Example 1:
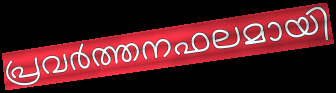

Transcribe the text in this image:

പ്രവർത്തനഫലമായി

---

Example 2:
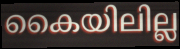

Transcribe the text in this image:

കൈയിലില്ല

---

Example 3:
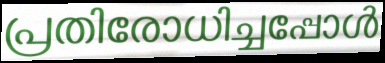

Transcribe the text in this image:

പ്രതിരോധിച്ചപ്പോൾ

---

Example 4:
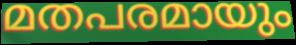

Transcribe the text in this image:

മതപരമായും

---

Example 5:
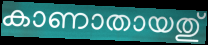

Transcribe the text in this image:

കാണാതായതു്